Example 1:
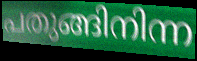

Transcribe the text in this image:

പതുങ്ങിനിന്ന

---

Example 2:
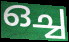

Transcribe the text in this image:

ഒച്ച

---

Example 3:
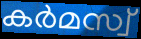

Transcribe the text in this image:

കർമസ്വ്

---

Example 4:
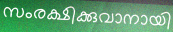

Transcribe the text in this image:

സംരക്ഷിക്കുവാനായി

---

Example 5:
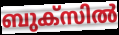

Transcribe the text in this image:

ബുക്സിൽ